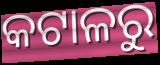
କଟାଳରୁ